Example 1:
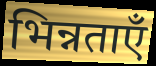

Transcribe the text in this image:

भिन्नताएँ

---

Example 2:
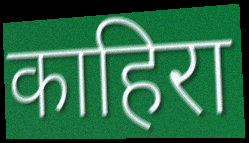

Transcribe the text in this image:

काहिरा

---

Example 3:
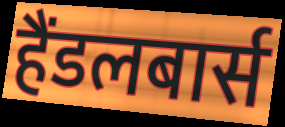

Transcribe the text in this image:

हैंडलबार्स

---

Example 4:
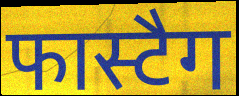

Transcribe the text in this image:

फास्टैग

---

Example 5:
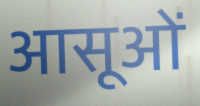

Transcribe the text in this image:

आसूओं